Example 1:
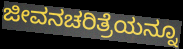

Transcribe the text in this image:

ಜೀವನಚರಿತ್ರೆಯನ್ನೂ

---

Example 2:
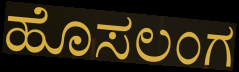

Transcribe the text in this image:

ಹೊಸಲಂಗ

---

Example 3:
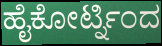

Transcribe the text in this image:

ಹೈಕೋರ್ಟ್ನಿಂದ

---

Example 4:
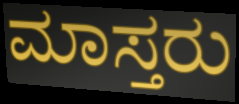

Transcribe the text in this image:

ಮಾಸ್ತರು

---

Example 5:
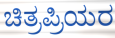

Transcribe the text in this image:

ಚಿತ್ರಪ್ರಿಯರ